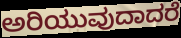
ಅರಿಯುವುದಾದರೆ